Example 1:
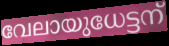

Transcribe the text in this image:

വേലായുധേട്ടന്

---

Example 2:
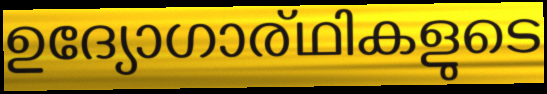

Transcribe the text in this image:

ഉദ്യോഗാര്ഥികളുടെ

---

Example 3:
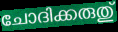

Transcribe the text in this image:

ചോദിക്കരുതു്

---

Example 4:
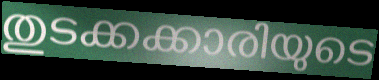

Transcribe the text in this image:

തുടക്കക്കാരിയുടെ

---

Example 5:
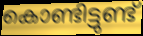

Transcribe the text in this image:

കൊണ്ടിട്ടുണ്ട്